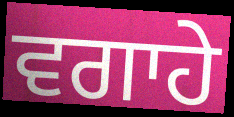
ਵਗਾਹੇ